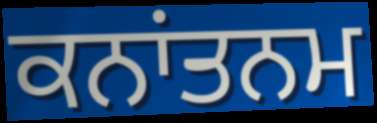
ਕਨਾਂਤਨਮ